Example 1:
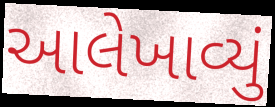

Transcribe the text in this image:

આલેખાવ્યું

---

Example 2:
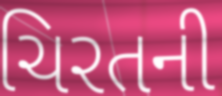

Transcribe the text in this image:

ચિરતની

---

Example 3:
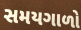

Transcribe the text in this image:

સમયગાળો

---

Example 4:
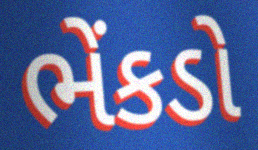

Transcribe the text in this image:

ભેંકડો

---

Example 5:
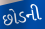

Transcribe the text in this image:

છોડની